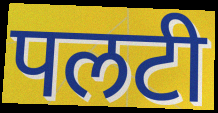
पलटी